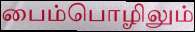
பைம்பொழிலும்